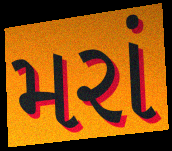
મરાં